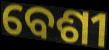
ବେଶୀ